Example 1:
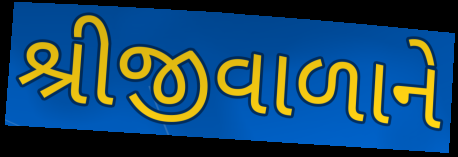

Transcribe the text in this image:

શ્રીજીવાળાને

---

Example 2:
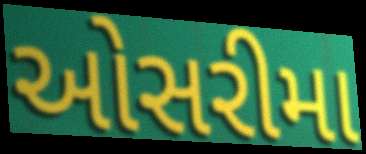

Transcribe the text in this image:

ઓસરીમા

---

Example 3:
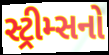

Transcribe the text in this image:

સ્ટ્રીમ્સનો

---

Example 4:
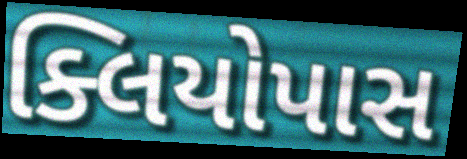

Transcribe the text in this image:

ક્લિયોપાસ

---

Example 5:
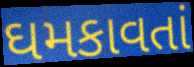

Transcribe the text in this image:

ઘમકાવતાં